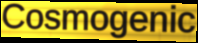
Cosmogenic